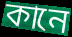
কানে